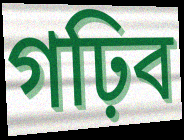
গঢ়িব